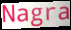
Nagra